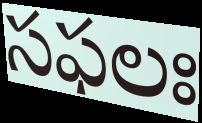
సఫలః